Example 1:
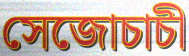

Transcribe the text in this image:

সেজোচাচী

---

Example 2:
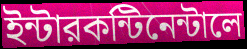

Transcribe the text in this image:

ইন্টারকন্টিনেন্টালে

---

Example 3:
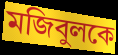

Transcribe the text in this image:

মজিবুলকে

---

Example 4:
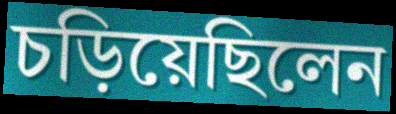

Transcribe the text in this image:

চড়িয়েছিলেন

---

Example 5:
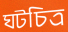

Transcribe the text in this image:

ঘটচিত্র